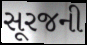
સૂરજની